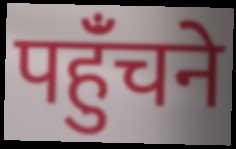
पहुंँचने